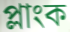
প্লাংক